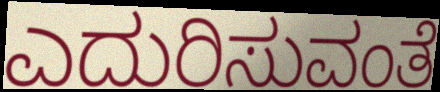
ಎದುರಿಸುವಂತೆ